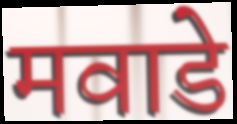
मवाडे